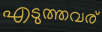
എടുത്തവര്